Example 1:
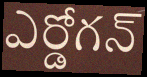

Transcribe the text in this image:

ఎర్డోగన్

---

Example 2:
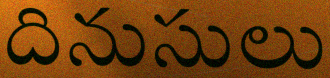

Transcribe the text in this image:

దినుసులు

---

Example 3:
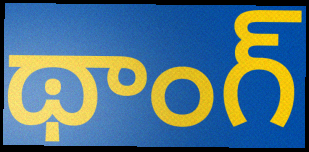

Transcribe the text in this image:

థాంగ్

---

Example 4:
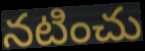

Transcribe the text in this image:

నటించు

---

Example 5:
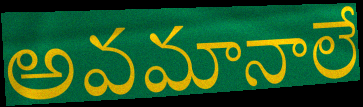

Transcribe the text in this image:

అవమానాలే